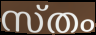
സ്‌തം